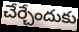
చేర్చేందుకు